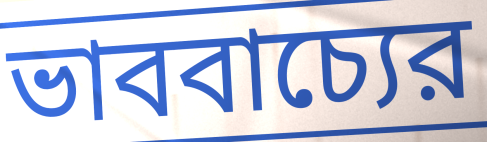
ভাববাচ্যের